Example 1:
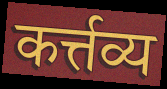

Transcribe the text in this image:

कर्त्तव्य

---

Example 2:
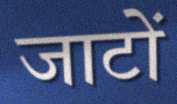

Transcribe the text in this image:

जाटों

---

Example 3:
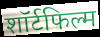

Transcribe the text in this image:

शॉर्टफिल्म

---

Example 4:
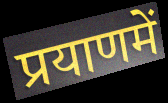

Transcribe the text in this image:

प्रयाणमें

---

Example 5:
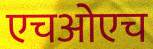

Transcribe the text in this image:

एचओएच